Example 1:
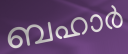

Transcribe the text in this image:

ബഹാർ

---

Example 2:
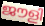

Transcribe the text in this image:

ജൗളി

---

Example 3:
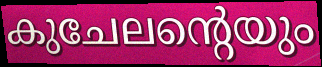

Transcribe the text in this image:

കുചേലന്റെയും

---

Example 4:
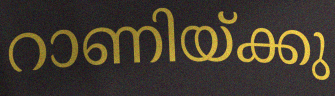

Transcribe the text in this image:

റാണിയ്ക്കു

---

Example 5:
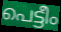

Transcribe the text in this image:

പെട്ടീം